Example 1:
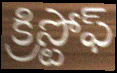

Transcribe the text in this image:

క్రిస్టోఫ్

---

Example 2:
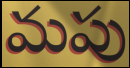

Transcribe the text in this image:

మపు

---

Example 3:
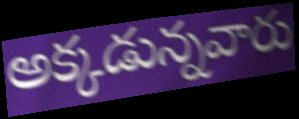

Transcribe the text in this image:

అక్కడున్నవారు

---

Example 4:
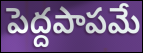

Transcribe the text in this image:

పెద్దపాపమే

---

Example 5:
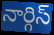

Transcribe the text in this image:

నార్గిస్